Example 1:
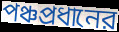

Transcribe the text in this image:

পঞ্চপ্রধানের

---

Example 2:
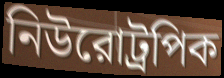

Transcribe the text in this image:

নিউরোট্রপিক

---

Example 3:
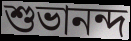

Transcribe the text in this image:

শুভানন্দ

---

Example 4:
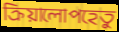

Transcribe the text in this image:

ক্রিয়ালোপহেতু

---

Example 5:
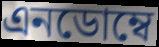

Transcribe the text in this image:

এনডোম্বে